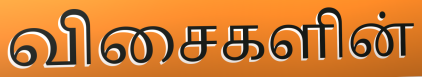
விசைகளின்